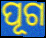
ପୂଗ